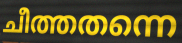
ചീത്തതന്നെ